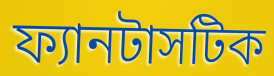
ফ্যানটাসটিক